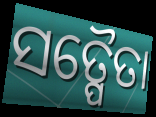
ସତ୍ପୈତା